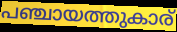
പഞ്ചായത്തുകാര്